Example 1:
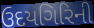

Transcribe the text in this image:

ઉદયગિરિની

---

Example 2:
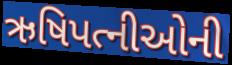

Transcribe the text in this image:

ઋષિપત્નીઓની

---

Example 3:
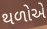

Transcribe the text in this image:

થળોએ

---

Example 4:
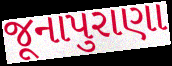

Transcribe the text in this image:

જૂનાપુરાણા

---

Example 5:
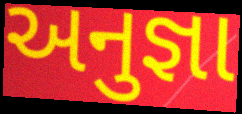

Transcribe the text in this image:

અનુજ્ઞા